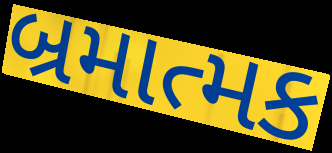
બ્રમાત્મક